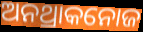
ଅନଥ୍ରାକନୋଜ